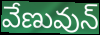
వేణువున్